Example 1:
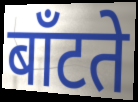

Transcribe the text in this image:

बाँटते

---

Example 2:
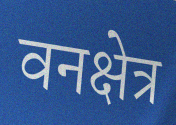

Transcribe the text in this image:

वनक्षेत्र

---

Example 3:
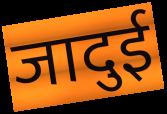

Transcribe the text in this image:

जादुई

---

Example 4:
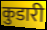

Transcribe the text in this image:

कुडारी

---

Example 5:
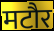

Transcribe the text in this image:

मटौर